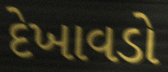
દેખાવડો